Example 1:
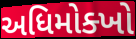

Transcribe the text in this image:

અધિમોક્ખો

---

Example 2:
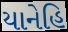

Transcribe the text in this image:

યાનેહિ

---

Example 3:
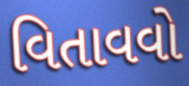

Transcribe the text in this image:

વિતાવવો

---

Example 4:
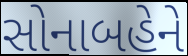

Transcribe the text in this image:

સોનાબહેને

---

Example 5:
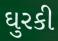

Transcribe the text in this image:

ઘુરકી